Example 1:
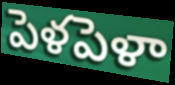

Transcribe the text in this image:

పెళపెళా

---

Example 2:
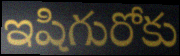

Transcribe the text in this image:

ఇషిగురోకు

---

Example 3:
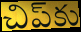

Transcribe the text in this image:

చిప్‌కు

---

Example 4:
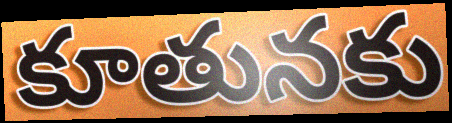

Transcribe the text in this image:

కూతునకు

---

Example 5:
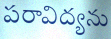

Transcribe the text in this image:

పరావిద్యను